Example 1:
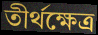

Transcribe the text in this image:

তীর্থক্ষেত্র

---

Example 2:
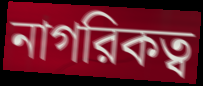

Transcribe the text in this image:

নাগরিকত্ব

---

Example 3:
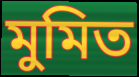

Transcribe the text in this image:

মুমিত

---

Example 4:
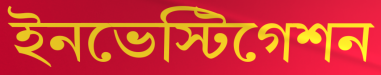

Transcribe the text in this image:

ইনভেস্টিগেশন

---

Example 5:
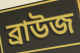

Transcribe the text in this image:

ব্রাউজ